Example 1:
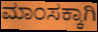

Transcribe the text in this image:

ಮಾಂಸಕ್ಕಾಗಿ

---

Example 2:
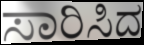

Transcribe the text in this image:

ಸಾರಿಸಿದ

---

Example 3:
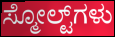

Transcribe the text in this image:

ಸ್ಮೋಲ್ಟ್‌ಗಳು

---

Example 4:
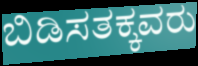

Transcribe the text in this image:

ಬಿಡಿಸತಕ್ಕವರು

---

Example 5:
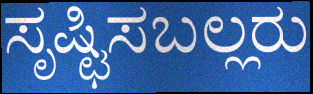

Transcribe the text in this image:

ಸೃಷ್ಟಿಸಬಲ್ಲರು